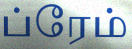
ப்ரேம்